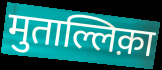
मुताल्लिक़ा